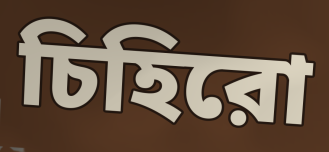
চিহিরো